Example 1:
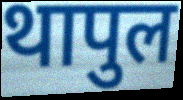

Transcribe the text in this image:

थापुल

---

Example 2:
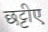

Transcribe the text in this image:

छट्टीए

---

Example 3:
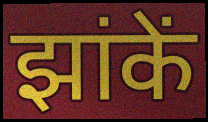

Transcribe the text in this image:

झांकें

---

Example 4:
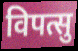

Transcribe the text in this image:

विपत्सु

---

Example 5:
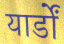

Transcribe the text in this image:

यार्डों